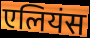
एलियंस